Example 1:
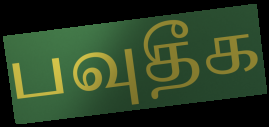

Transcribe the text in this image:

பவுதீக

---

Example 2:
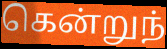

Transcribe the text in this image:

கென்றுந்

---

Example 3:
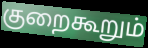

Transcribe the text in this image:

குறைகூறும்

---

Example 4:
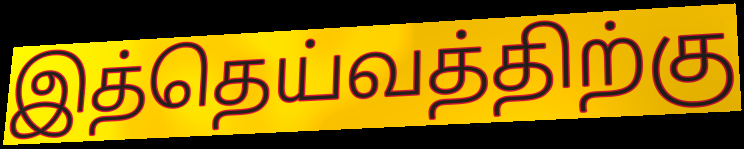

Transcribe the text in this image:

இத்தெய்வத்திற்கு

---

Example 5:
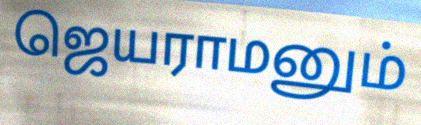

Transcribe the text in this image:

ஜெயராமனும்